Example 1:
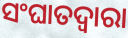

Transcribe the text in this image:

ସଂଘାତଦ୍ୱାରା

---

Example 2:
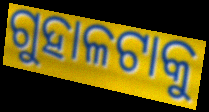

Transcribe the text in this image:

ଗୁହାଳଟାକୁ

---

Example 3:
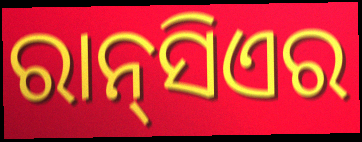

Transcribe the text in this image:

ରାନ୍‌ସିଏର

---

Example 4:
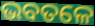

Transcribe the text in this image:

ଭବତଳେ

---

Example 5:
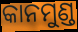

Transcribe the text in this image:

କାନମୁଣ୍ଡ